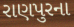
રાણપુરના